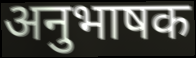
अनुभाषक